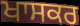
ਖਾਸਕਰ